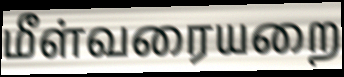
மீள்வரையறை